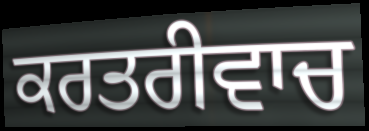
ਕਰਤਰੀਵਾਚ